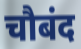
चौबंद